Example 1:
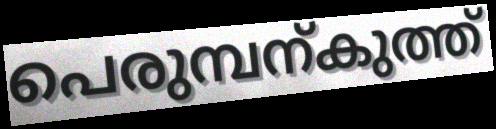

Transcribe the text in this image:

പെരുമ്പന്കുത്ത്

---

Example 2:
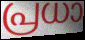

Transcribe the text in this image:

പ്രധാ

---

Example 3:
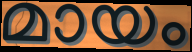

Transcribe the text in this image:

മായം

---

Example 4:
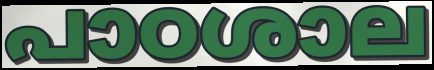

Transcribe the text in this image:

പാഠശാല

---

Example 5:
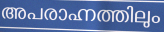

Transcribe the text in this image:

അപരാഹ്നത്തിലും